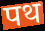
पथ